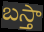
బస్తా